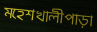
মহেশখালীপাড়া